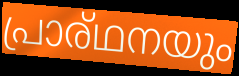
പ്രാര്ഥനയും